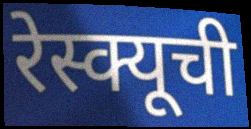
रेस्क्यूची